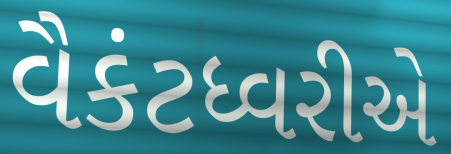
વૈકંટધ્વરીએ